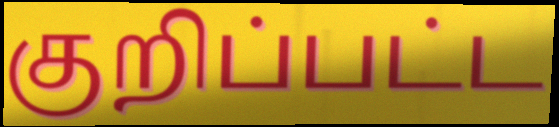
குறிப்பட்ட